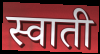
स्वाती